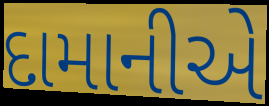
દામાનીએ